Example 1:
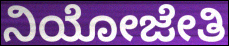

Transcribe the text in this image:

ನಿಯೋಜೇತಿ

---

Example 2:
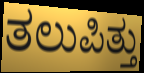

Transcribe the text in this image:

ತಲುಪಿತ್ತು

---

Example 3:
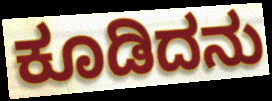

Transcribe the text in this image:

ಕೂಡಿದನು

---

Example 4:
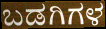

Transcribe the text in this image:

ಬಡಗಿಗಳ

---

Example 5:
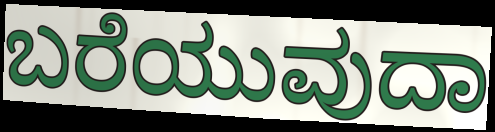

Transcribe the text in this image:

ಬರೆಯುವುದಾ